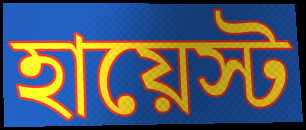
হায়েস্ট